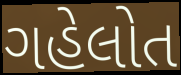
ગહેલોત